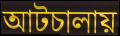
আটচালায়